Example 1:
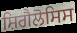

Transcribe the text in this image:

ਸ਼ਿਗੈਲੋਸਿਸ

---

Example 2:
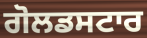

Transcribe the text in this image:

ਗੋਲਡਸਟਾਰ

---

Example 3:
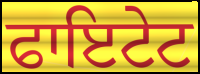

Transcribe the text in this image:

ਫਾਇਟੇਟ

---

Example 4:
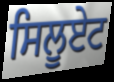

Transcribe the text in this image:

ਸਿਲੂਏਟ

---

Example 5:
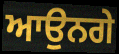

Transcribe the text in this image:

ਆਉਨਗੇ